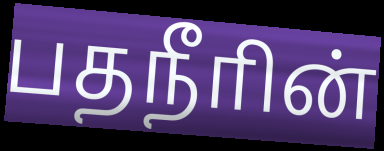
பதநீரின்